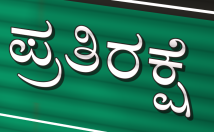
ಪ್ರತಿರಕ್ಷೆ